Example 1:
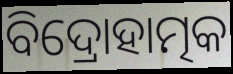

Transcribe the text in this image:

ବିଦ୍ରୋହାତ୍ମକ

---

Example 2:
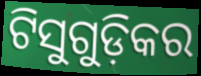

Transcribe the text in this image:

ଟିସୁଗୁଡ଼ିକର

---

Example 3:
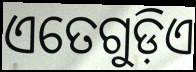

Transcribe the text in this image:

ଏତେଗୁଡ଼ିଏ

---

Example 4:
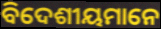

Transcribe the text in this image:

ବିଦେଶୀୟମାନେ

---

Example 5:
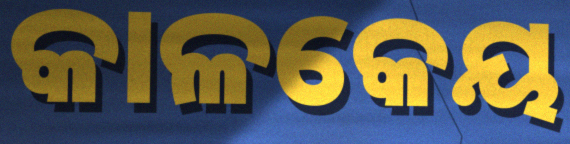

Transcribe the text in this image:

କାଳକେୟ